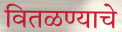
वितळण्याचे